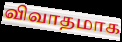
விவாதமாக